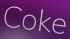
Coke